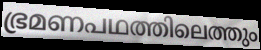
ഭ്രമണപഥത്തിലെത്തും